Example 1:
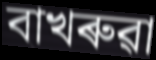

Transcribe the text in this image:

বাখৰুৱা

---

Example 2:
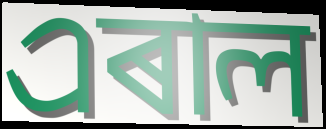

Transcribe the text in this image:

এৰাল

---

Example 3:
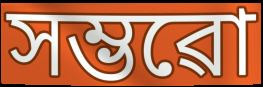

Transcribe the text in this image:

সম্ভৱো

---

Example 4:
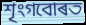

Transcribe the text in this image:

শৃংগবোৰত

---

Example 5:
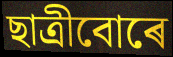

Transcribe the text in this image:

ছাত্ৰীবোৰে